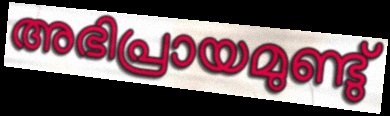
അഭിപ്രായമുണ്ടു്